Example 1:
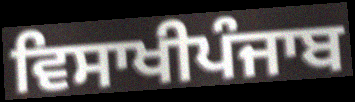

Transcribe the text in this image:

ਵਿਸਾਖੀਪੰਜਾਬ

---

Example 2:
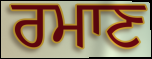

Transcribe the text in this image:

ਰਮਾਣ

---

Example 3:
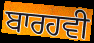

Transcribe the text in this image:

ਬਾਰਹਵੀ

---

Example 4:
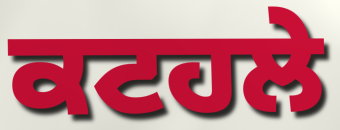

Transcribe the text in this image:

ਕਟਹਲੇ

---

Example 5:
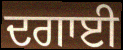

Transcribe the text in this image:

ਦਗਾਈ